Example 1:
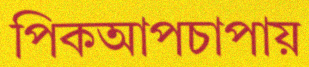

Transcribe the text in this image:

পিকআপচাপায়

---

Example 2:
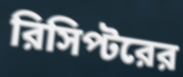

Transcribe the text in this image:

রিসিপ্টরের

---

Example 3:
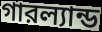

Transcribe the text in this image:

গারল্যান্ড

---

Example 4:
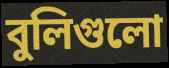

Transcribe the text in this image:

বুলিগুলো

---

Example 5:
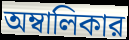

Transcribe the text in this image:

অম্বালিকার